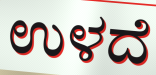
ಉಳದೆ